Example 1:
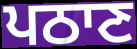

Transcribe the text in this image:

ਪਠਾਣ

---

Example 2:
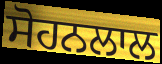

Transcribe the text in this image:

ਸੋਹਨਲਾਲ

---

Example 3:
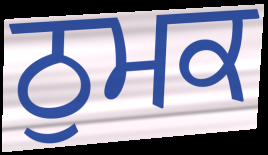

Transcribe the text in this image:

ਠੁਮਕ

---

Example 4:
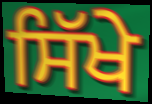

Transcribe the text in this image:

ਸਿੱਖੇ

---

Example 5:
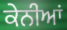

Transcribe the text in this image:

ਕੇਨੀਆਂ